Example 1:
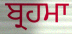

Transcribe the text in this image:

ਬ੍ਰਹਮਾ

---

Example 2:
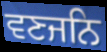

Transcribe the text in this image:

ਵਣਜਨਿ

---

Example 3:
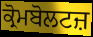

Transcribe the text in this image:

ਕ੍ਰੋਮਬੋਲਟਜ਼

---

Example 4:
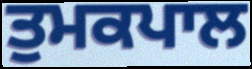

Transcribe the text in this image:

ਤੁਮਕਪਾਲ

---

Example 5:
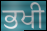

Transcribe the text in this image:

ਭਖੀ